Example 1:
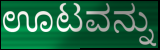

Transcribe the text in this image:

ಊಟವನ್ನು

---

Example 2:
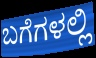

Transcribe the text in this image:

ಬಗೆಗಳಲ್ಲಿ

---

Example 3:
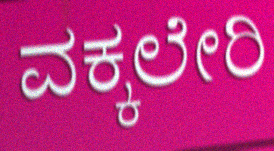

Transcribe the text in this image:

ವಕ್ಕಲೇರಿ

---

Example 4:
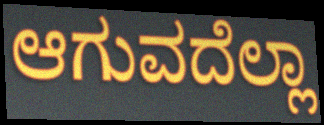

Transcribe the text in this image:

ಆಗುವದೆಲ್ಲಾ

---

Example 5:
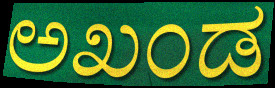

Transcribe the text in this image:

ಅಖಂಡ